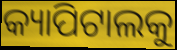
କ୍ୟାପିଟାଲକୁ